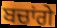
ਬਚਾਂਗੇ